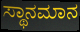
ಸ್ಥಾನಮಾನ